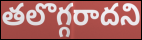
తలొగ్గరాదని